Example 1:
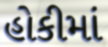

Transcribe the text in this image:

હોકીમાં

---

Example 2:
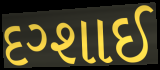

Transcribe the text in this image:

દગ્શાઈ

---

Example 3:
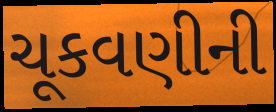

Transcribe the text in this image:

ચૂકવણીની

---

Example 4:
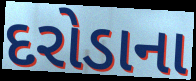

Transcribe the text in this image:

દરોડાના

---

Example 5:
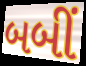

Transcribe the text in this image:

બબીં